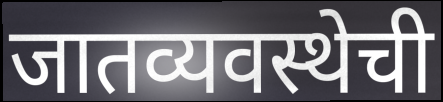
जातव्यवस्थेची